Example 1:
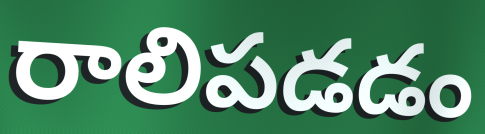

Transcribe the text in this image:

రాలిపడడం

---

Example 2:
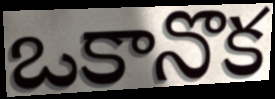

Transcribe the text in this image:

ఒకానొక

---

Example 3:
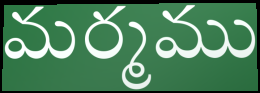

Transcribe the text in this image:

మర్మము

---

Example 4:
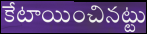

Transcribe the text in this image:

కేటాయించినట్టు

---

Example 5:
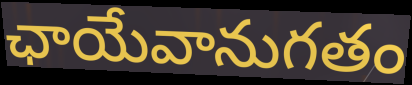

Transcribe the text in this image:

ఛాయేవానుగతం